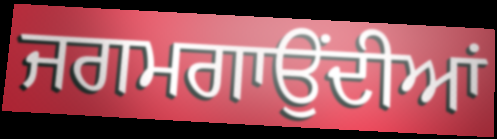
ਜਗਮਗਾਉਂਦੀਆਂ